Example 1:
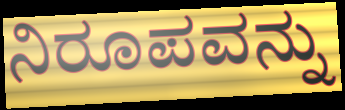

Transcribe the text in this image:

ನಿರೂಪವನ್ನು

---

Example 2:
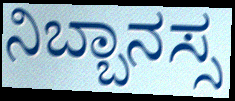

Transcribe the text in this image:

ನಿಬ್ಬಾನಸ್ಸ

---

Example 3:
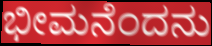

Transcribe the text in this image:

ಭೀಮನೆಂದನು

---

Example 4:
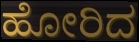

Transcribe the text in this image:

ಹೋರಿದ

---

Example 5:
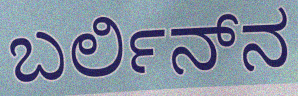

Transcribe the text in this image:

ಬರ್ಲಿನ್‍ನ